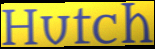
Hutch